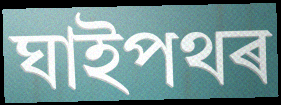
ঘাইপথৰ